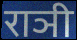
राञी